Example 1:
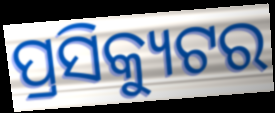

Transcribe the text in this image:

ପ୍ରସିକ୍ୟୁଟର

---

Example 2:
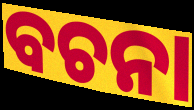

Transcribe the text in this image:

ବଚନା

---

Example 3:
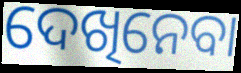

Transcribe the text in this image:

ଦେଖିନେବା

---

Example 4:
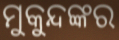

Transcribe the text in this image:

ମୁକୁନ୍ଦଙ୍କର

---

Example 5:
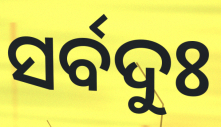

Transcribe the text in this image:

ସର୍ବଦୁଃ